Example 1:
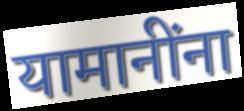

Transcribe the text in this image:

यामानींना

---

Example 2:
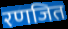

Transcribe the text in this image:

रणजित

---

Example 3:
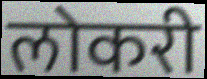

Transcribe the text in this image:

लोकरी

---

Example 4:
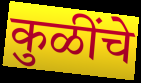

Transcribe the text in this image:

कुळींचे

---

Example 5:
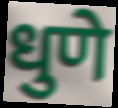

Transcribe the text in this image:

धुणे